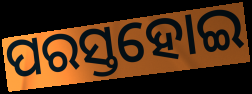
ପରସ୍ତହୋଇ